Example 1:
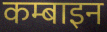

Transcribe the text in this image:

कम्बाइन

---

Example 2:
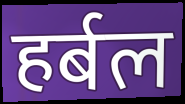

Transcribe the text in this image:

हर्बल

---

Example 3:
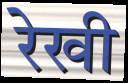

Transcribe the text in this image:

रेखी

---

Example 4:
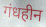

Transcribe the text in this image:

गंधहीन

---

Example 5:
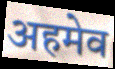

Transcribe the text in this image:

अहमेव